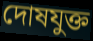
দোষযুক্ত